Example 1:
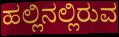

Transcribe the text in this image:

ಹಲ್ಲಿನಲ್ಲಿರುವ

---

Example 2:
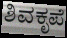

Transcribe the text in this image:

ಶಿವಕೃಪೆ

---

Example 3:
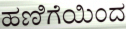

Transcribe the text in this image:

ಹಣಿಗೆಯಿಂದ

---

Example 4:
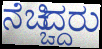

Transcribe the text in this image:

ನೆಚ್ಚಿದ್ದರು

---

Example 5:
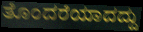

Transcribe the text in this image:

ತೊಂದರೆಯಾದದ್ದು